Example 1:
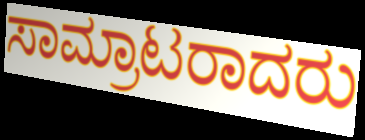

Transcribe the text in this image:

ಸಾಮ್ರಾಟರಾದರು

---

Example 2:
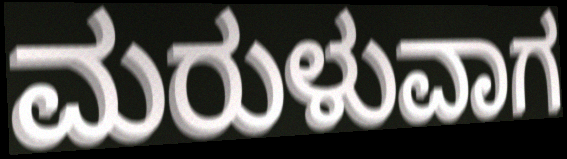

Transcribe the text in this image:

ಮರುಳುವಾಗ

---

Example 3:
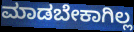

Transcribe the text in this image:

ಮಾಡಬೇಕಾಗಿಲ್ಲ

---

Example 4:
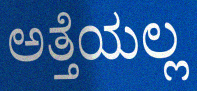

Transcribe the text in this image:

ಅತ್ತೆಯಲ್ಲ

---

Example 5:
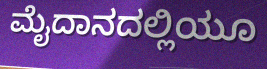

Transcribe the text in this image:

ಮೈದಾನದಲ್ಲಿಯೂ